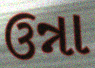
ઉન્ના